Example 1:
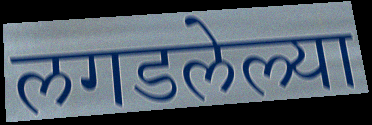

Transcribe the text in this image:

लगडलेल्या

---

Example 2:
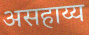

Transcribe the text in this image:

असहाय्य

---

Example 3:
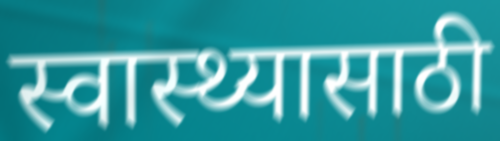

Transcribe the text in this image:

स्वास्थ्यासाठी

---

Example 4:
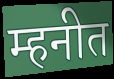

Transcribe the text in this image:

म्हनीत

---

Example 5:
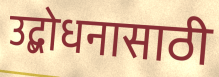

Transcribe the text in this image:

उद्बोधनासाठी